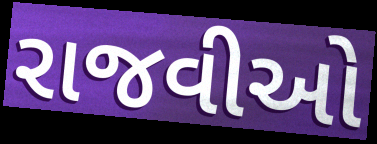
રાજવીઓ